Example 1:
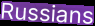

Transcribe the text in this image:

Russians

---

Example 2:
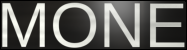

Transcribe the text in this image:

MONE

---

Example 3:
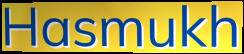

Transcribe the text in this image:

Hasmukh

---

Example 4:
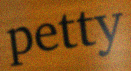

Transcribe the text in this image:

petty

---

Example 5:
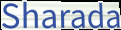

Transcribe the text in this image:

Sharada